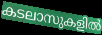
കടലാസുകളിൽ